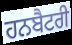
ਹਨਬੈਟਰੀ